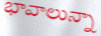
భావాలున్నా